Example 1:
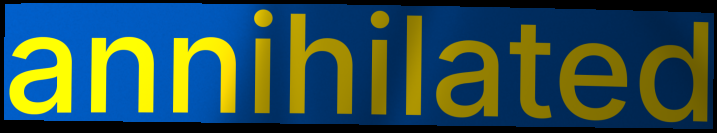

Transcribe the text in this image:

annihilated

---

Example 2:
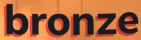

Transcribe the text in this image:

bronze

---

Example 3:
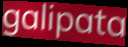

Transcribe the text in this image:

galipata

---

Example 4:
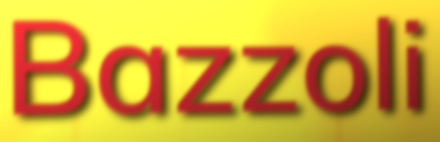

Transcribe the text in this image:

Bazzoli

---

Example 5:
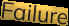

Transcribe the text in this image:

Failure